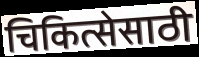
चिकित्सेसाठी